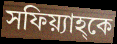
সফিয়্যাহ্কে